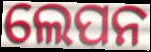
ଲେପନ